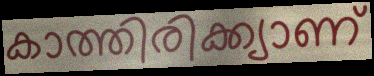
കാത്തിരിക്ക്യാണ്